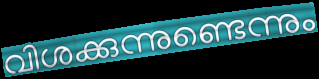
വിശക്കുന്നുണ്ടെന്നും